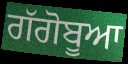
ਗੱਗੋਬੂਆ